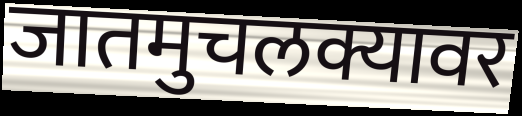
जातमुचलक्यावर